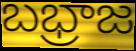
బభ్రాజ